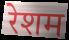
रेशम